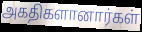
அகதிகளானார்கள்